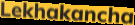
Lekhakancha